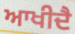
ਆਖੀਦੈ